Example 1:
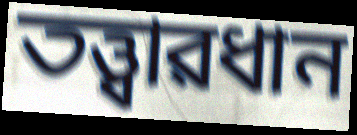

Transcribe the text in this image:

তত্ত্বাৱধান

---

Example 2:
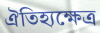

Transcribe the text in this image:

ঐতিহ্যক্ষেত্ৰ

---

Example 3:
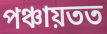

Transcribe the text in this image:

পঞ্চায়তত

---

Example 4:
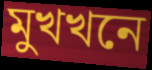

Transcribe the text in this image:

মুখখনে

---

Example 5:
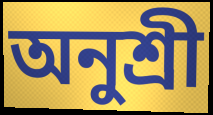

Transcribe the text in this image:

অনুশ্ৰী